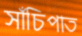
সাঁচিপাত